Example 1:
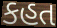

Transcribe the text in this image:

કહત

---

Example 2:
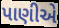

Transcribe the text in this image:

પાણીએ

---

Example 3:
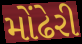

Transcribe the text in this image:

મોંઢેરી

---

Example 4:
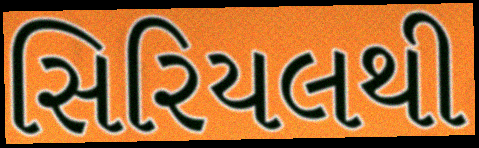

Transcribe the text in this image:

સિરિયલથી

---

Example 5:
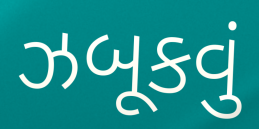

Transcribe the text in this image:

ઝબૂકવું